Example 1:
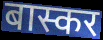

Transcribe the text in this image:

बास्कर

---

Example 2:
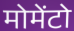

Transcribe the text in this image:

मोमेंटो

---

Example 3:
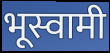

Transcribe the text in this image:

भूस्‍वामी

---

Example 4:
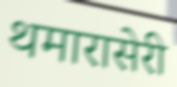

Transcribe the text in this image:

थमारासेरी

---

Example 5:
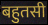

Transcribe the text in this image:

बहुतसी